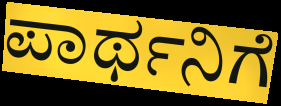
ಪಾರ್ಥನಿಗೆ